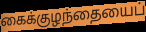
கைக்குழந்தையைப்